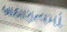
બ્રાહ્મણત્વમાં